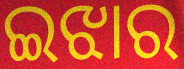
ଇଝାର